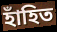
হাঁহিত